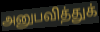
அனுபவித்துக்